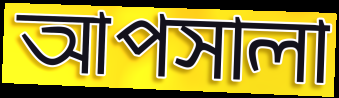
আপসালা